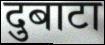
दुबाटा